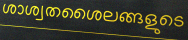
ശാശ്വതശൈലങ്ങളുടെ